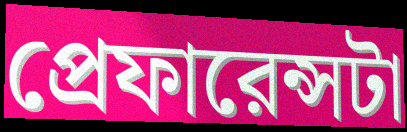
প্রেফারেন্সটা